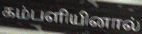
கம்பளியினால்